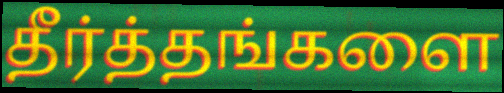
தீர்த்தங்களை